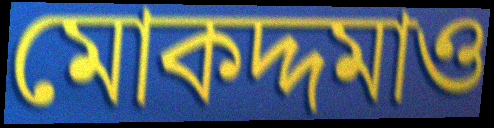
মোকদ্দমাও